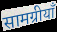
सामग्रीयाँ